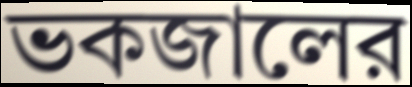
ভকজালের